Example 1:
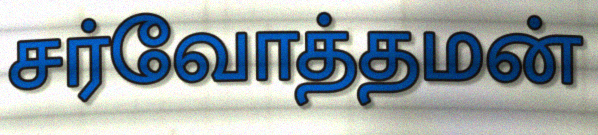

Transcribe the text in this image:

சர்வோத்தமன்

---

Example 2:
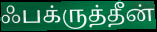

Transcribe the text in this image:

ஃபக்ருத்தீன்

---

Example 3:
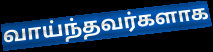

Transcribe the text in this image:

வாய்ந்தவர்களாக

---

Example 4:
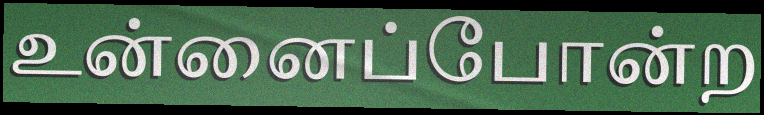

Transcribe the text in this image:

உன்னைப்போன்ற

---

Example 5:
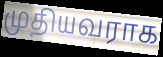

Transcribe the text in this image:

முதியவராக